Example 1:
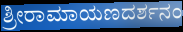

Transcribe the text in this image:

ಶ್ರೀರಾಮಾಯಣದರ್ಶನಂ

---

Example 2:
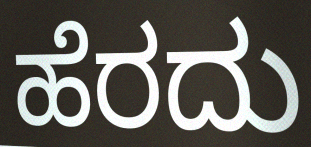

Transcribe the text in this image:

ಹೆರದು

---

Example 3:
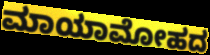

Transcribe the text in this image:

ಮಾಯಾಮೋಹದ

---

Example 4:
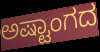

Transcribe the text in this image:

ಅಷ್ಟಾಂಗದ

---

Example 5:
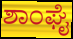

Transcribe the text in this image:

ಶಾಂಘೈ